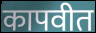
कापवीत